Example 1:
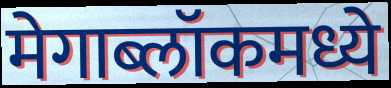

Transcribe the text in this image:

मेगाब्लॉकमध्ये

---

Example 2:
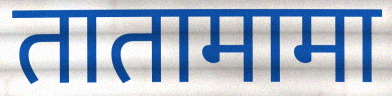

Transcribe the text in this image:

तातामामा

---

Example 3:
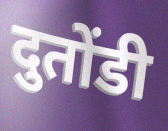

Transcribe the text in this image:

दुतोंडी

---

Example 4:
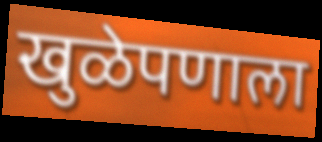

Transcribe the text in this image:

खुळेपणाला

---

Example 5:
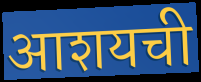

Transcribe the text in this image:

आशयची